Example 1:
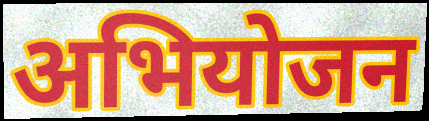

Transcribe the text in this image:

अभियोजन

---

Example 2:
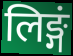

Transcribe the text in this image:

लिङ्गं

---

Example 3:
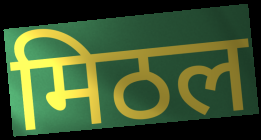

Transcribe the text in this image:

मिठल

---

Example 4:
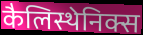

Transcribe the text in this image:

कैलिस्थेनिक्स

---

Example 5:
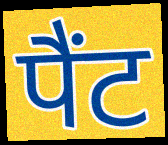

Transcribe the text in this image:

पैंट